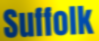
Suffolk